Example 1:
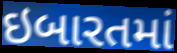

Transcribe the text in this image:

ઇબારતમાં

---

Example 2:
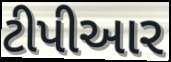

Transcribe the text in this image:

ટીપીઆર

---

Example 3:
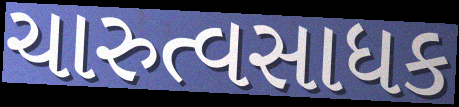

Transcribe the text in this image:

ચારુત્વસાધક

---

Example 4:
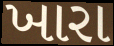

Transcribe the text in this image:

ખારા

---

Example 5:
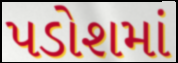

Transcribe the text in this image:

પડોશમાં